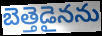
బెత్తెడైనను